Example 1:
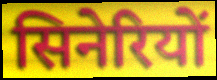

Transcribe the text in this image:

सिनेरियों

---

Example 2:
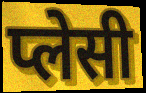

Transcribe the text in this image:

प्लेसी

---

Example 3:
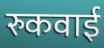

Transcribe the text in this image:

रुकवाई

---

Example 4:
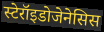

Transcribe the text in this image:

स्टेरॉइडोजेनेसिस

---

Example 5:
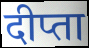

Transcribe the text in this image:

दीप्ता